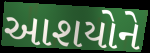
આશયોને